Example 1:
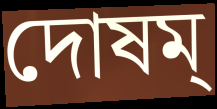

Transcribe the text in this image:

দোষম্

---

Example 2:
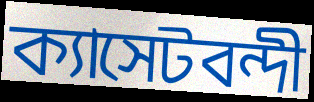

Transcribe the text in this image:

ক্যাসেটবন্দী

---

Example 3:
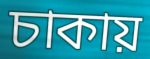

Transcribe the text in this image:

চাকায়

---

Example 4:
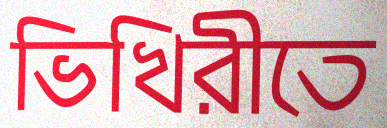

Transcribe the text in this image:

ভিখিরীতে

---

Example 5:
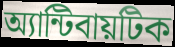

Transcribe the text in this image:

অ্যান্টিবায়টিক